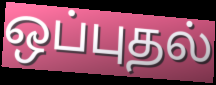
ஒப்புதல்